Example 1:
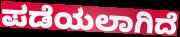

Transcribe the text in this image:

ಪಡೆಯಲಾಗಿದೆ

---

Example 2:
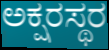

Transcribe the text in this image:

ಅಕ್ಷರಸ್ಥರ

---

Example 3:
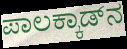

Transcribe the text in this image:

ಪಾಲಕ್ಕಾಡ್‌ನ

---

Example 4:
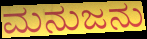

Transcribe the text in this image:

ಮನುಜನು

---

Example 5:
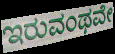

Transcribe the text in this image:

ಇರುವಂಥವೇ